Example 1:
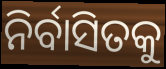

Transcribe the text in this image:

ନିର୍ବାସିତକୁ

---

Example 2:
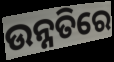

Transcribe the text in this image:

ଉନ୍ନତିରେ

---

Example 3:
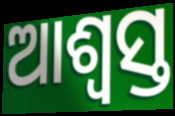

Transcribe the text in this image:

ଆଶ୍ୱସ୍ତ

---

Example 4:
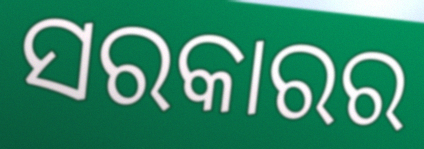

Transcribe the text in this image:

ସରକାରର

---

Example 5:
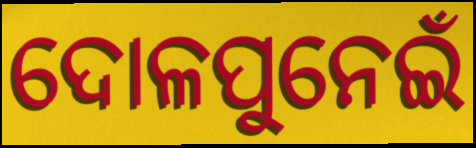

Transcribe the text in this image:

ଦୋଳପୁନେଇଁ